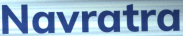
Navratra